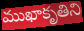
ముఖాకృతిని